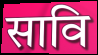
सावि